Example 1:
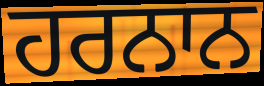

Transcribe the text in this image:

ਹਰਨਾਨ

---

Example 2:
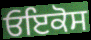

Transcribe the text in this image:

ਓਇਕੋਸ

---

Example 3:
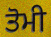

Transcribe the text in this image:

ਤੋਮੀ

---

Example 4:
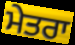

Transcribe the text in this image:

ਮੇਤਰਾ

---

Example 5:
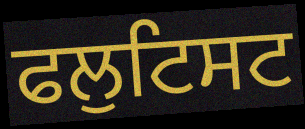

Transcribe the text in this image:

ਫਲੁਟਿਸਟ